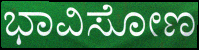
ಭಾವಿಸೋಣ